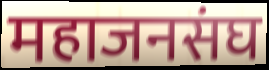
महाजनसंघ